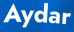
Aydar